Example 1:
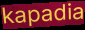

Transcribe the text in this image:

kapadia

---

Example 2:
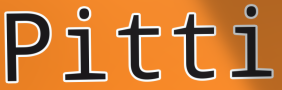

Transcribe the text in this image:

Pitti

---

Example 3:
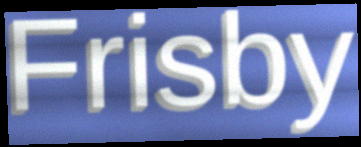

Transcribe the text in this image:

Frisby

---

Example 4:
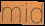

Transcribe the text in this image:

mid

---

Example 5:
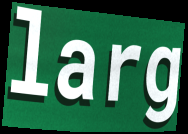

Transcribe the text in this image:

larg